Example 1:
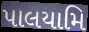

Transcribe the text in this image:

પાલયામિ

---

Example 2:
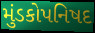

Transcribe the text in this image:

મુંડકોપનિષદ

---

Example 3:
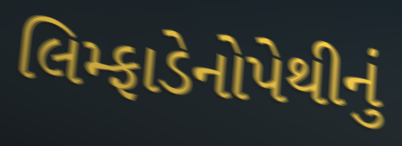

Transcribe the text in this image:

લિમ્ફાડેનોપેથીનું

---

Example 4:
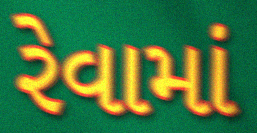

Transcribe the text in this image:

રેવામાં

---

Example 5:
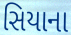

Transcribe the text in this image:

સિયાના